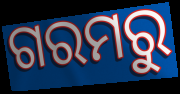
ଗରମରୁ